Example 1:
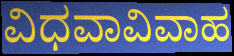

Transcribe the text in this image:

ವಿಧವಾವಿವಾಹ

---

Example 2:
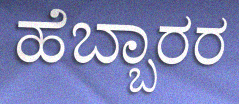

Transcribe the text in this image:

ಹೆಬ್ಬಾರರ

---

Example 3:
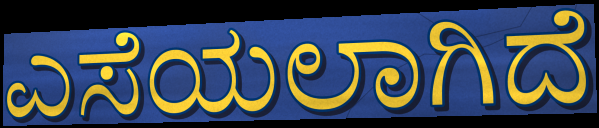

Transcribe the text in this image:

ಎಸೆಯಲಾಗಿದೆ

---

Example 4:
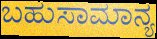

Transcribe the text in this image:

ಬಹುಸಾಮಾನ್ಯ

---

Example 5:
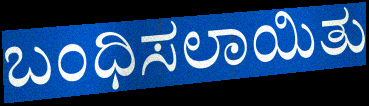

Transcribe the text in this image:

ಬಂಧಿಸಲಾಯಿತು